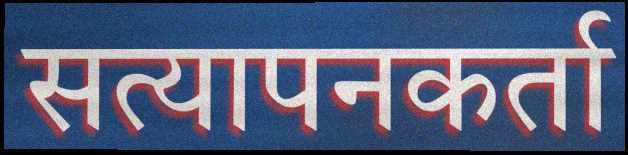
सत्यापनकर्ता